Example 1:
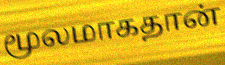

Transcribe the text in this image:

மூலமாகதான்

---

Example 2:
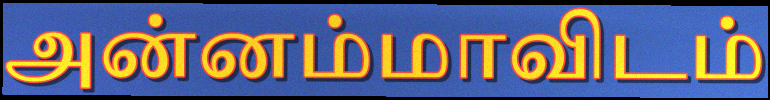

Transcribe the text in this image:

அன்னம்மாவிடம்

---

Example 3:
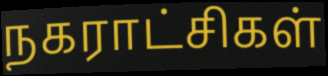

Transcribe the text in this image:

நகராட்சிகள்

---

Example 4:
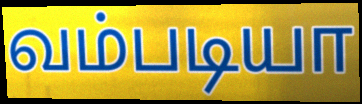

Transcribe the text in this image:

வம்படியா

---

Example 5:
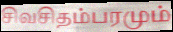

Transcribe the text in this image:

சிவசிதம்பரமும்